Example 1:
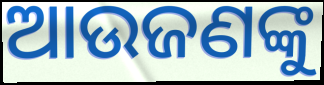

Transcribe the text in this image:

ଆଉଜଣଙ୍କୁ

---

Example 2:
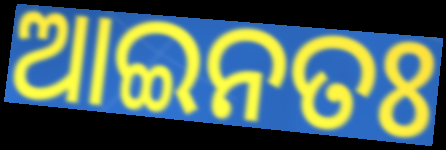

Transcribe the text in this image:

ଆଇନତଃ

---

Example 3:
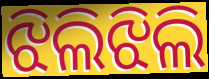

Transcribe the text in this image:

ଝିଲିଝିଲି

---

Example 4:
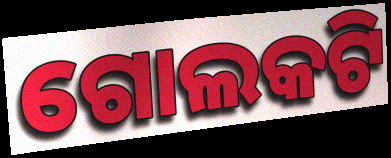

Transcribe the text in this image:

ଗୋଲକଟି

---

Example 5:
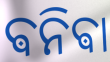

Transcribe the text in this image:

ଵନିଵା